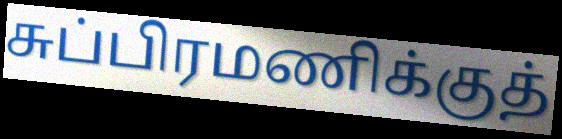
சுப்பிரமணிக்குத்